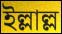
ইল্লাল্ল